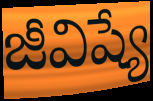
జీవిష్యే